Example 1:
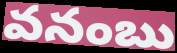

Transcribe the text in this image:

వనంబు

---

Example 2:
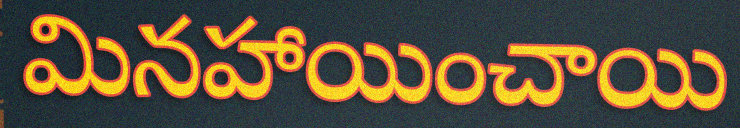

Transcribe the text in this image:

మినహాయించాయి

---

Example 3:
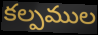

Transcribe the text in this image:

కల్పముల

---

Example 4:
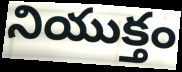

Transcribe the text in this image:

నియుక్తం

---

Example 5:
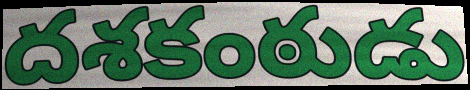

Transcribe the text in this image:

దశకంఠుడు